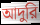
আদুরি